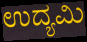
ಉದ್ಯಮಿ